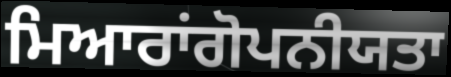
ਮਿਆਰਾਂਗੋਪਨੀਯਤਾ